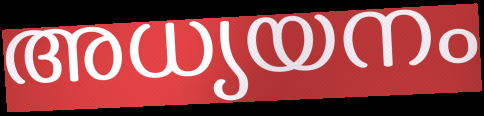
അധ്യയനം